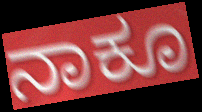
ನಾಕೂ